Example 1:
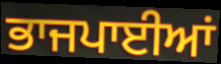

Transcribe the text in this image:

ਭਾਜਪਾਈਆਂ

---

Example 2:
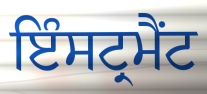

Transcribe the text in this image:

ਇੰਸਟ੍ਰਮੈਂਟ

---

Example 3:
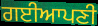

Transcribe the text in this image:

ਗਈਆਪਣੀ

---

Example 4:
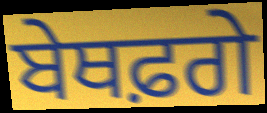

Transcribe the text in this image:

ਬੇਥਫ਼ਗੇ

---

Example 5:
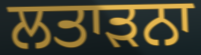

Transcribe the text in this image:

ਲਤਾੜਨਾ